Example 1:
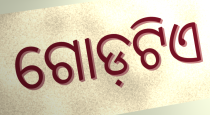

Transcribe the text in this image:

ଗୋଡ଼ଟିଏ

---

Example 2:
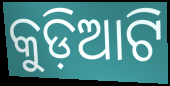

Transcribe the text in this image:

କୁଡ଼ିଆଟି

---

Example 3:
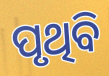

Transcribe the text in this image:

ପୃଥିବି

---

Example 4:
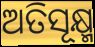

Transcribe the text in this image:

ଅତିସୂକ୍ଷ୍ମ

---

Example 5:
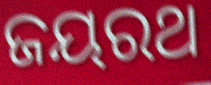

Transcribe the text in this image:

ଜୟରଥ